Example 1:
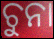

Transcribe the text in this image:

ଚୁନା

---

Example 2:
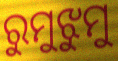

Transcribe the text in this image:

ରୁମୁଝୁମୁ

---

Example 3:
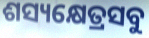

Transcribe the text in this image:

ଶସ୍ୟକ୍ଷେତ୍ରସବୁ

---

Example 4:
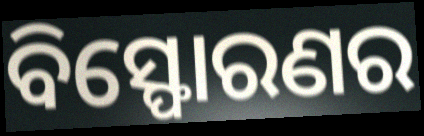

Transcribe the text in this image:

ବିସ୍ଫୋରଣର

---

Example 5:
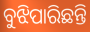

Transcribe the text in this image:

ବୁଝିପାରିଛନ୍ତି